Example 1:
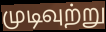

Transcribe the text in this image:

முடிவுற்று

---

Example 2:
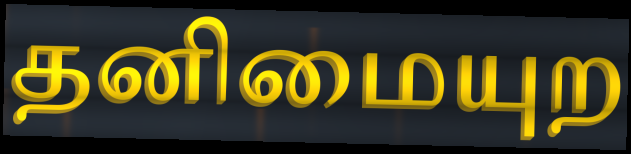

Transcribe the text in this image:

தனிமையுற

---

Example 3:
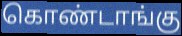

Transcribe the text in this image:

கொண்டாங்கு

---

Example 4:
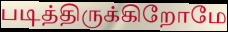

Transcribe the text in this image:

படித்திருக்கிறோமே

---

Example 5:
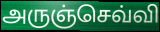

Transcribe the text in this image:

அருஞ்செவ்வி